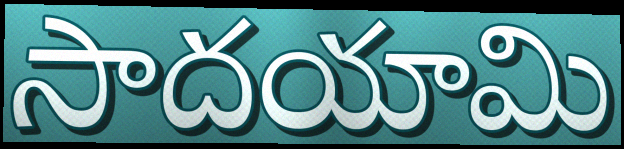
సాదయామి